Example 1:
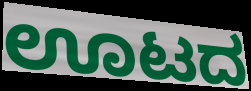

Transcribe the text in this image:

ಊಟದ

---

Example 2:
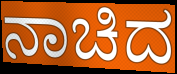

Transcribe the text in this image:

ನಾಚಿದ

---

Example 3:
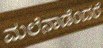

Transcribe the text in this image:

ಮಲೆನಾಡೆಂದರೆ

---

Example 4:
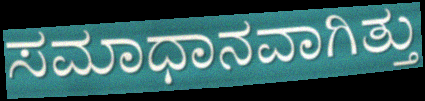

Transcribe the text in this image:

ಸಮಾಧಾನವಾಗಿತ್ತು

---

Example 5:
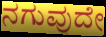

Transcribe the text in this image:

ನಗುವುದೇ